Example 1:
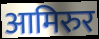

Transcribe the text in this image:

आमिरुर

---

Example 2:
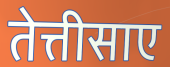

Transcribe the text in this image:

तेत्तीसाए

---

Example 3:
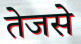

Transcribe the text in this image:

तेजसे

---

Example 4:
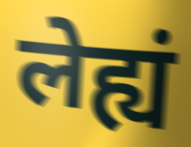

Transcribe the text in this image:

लेह्यं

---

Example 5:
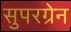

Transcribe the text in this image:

सुपरग्रेन